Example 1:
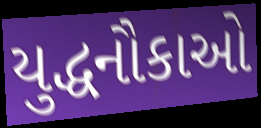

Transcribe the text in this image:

યુદ્ધનૌકાઓ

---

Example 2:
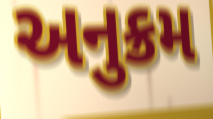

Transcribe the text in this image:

અનુક્રમ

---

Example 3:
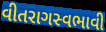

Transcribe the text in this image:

વીતરાગસ્વભાવી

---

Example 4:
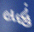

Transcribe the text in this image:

લદ્ધું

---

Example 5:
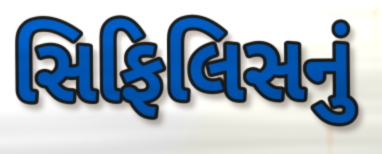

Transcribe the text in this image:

સિફિલિસનું